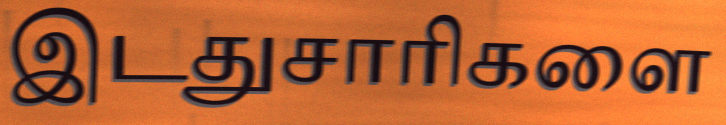
இடதுசாரிகளை